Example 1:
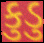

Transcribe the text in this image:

કુડુ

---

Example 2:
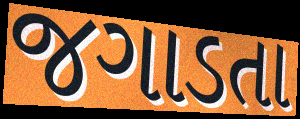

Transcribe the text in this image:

જગાડતા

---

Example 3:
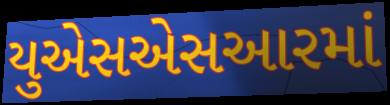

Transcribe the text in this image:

યુએસએસઆરમાં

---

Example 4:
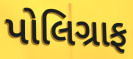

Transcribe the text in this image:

પોલિગ્રાફ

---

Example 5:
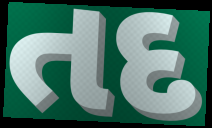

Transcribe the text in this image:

તદ